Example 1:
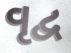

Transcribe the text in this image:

વૃદ્વ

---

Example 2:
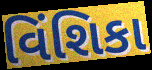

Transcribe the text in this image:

વિંશિકા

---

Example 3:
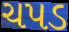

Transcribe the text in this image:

ચપડ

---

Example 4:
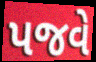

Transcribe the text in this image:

પજવે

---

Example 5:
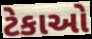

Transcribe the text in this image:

ટેકાઓ